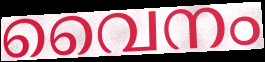
വൈനം